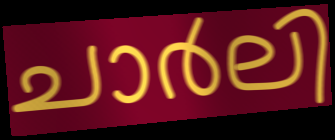
ചാർലി